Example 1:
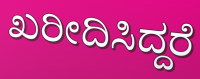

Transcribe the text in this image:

ಖರೀದಿಸಿದ್ದರೆ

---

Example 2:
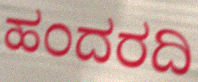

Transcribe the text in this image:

ಹಂದರದಿ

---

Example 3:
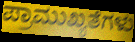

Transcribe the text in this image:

ಪ್ರಾಮುಖ್ಯತೆಗಳು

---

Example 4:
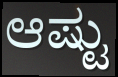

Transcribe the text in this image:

ಆಷ್ಟು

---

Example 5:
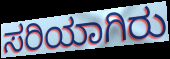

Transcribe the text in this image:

ಸರಿಯಾಗಿರು